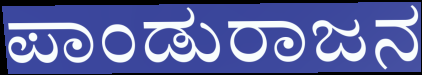
ಪಾಂಡುರಾಜನ